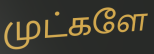
முட்களே